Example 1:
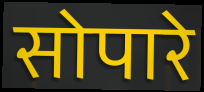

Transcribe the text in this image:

सोपारे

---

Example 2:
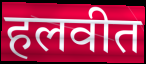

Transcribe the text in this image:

हलवीत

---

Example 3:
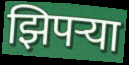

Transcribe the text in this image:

झिपऱ्या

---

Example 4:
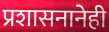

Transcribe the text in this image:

प्रशासनानेही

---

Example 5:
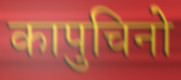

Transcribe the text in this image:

कापुचिनो